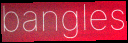
bangles